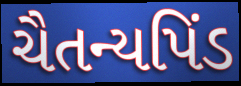
ચૈતન્યપિંડ